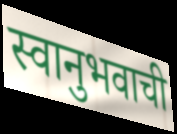
स्वानुभवाची